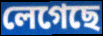
লেগেছে